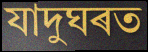
যাদুঘৰত